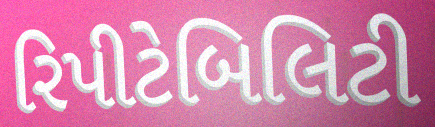
રિપીટેબિલિટી